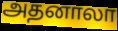
அதனாலா